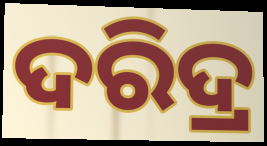
ଦରିଦ୍ର